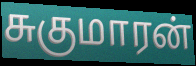
சுகுமாரன்